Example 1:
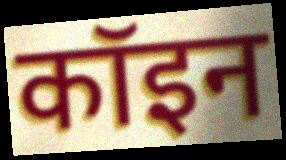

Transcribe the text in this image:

कॉइन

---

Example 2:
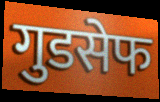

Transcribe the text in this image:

गुडसेफ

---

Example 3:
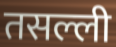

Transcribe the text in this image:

तसल्‍ली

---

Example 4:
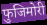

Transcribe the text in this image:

फुजिमोरी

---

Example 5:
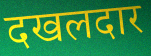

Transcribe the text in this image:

दखलदार